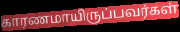
காரணமாயிருப்பவர்கள்